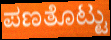
ಪಣತೊಟ್ಟು